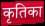
कृतिका